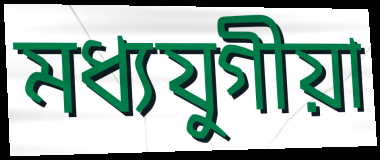
মধ্যযুগীয়া